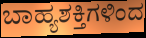
ಬಾಹ್ಯಶಕ್ತಿಗಳಿಂದ